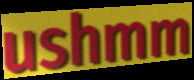
ushmm